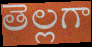
తెల్లగా